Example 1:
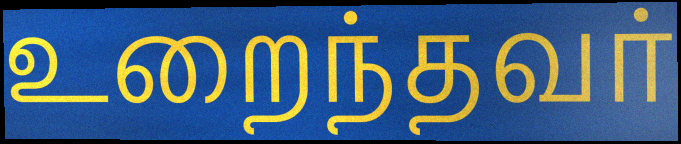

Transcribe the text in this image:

உறைந்தவர்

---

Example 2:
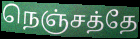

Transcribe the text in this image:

நெஞ்சத்தே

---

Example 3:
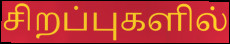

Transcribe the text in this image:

சிறப்புகளில்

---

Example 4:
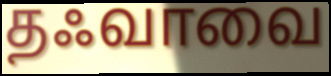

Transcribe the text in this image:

தஃவாவை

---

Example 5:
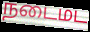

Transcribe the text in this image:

நடைமட